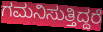
ಗಮನಿಸುತ್ತಿದ್ದರೆ